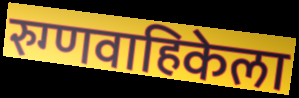
रुग्णवाहिकेला